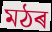
মঠৰ